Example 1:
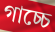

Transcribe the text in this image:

গাচ্চে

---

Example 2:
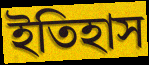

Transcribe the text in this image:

ইতিহাস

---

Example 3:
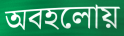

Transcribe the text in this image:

অবহলোয়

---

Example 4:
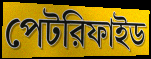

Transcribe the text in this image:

পেটরিফাইড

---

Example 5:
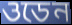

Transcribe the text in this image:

ওডেন